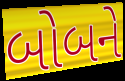
બોબને